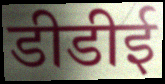
डीडीई